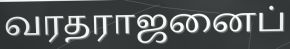
வரதராஜனைப்